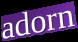
adorn